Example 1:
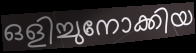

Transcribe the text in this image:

ഒളിച്ചുനോക്കിയ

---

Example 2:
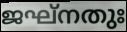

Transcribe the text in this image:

ജഘ്നതുഃ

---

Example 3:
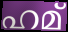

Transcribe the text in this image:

ഹമ്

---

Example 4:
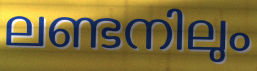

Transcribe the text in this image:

ലണ്ടനിലും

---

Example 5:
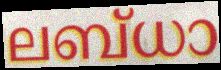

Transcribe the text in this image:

ലബ്ധാ